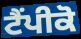
ਟੈਂਪੀਕੋ